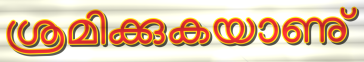
ശ്രമിക്കുകയാണു്